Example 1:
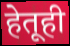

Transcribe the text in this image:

हेतूही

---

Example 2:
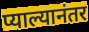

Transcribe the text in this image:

प्याल्यानंतर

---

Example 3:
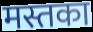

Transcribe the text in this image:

मस्तका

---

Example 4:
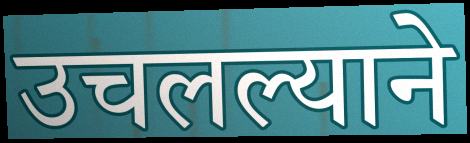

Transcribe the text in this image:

उचलल्याने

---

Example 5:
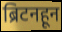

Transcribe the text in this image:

ब्रिटनहून